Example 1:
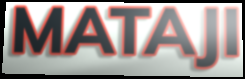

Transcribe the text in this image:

MATAJI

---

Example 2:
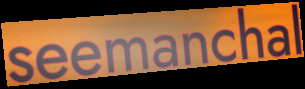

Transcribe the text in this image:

seemanchal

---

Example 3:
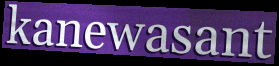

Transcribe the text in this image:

kanewasant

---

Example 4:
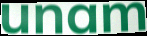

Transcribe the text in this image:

unam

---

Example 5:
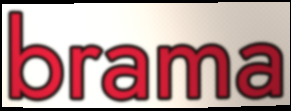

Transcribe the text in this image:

brama